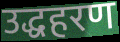
उद्धहरण